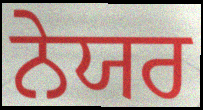
ਨੇਯਰ